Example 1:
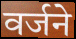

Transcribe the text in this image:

वर्जने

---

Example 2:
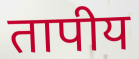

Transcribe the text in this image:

तापीय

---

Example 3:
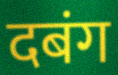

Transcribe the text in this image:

दबंग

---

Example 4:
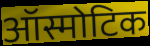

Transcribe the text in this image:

ऑस्मोटिक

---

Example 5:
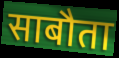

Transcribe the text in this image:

साबौता